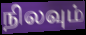
நிலவும்